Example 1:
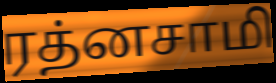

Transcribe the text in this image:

ரத்னசாமி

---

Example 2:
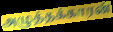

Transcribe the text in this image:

அழுத்தக்காரன்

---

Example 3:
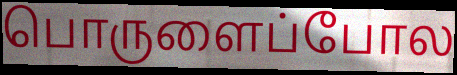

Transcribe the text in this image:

பொருளைப்போல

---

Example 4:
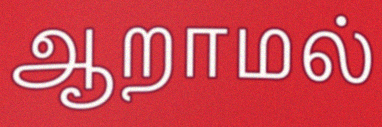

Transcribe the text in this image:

ஆறாமல்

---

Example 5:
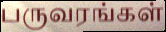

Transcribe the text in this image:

பருவரங்கள்